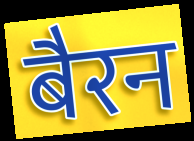
बैरन